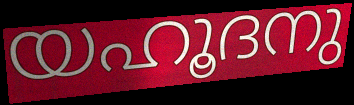
യഹൂദനു